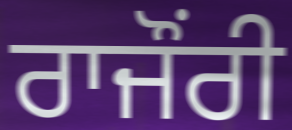
ਰਾਜੌਂਰੀ